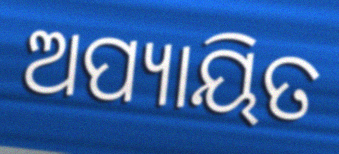
ଅପ୍ୟାୟିତ